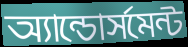
অ্যান্ডোর্সমেন্ট